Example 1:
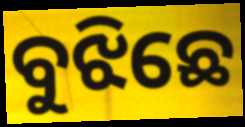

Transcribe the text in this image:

ବୁଝିଛେ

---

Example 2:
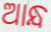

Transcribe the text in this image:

ଆନ୍ଧ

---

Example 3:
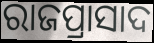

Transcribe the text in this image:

ରାଜପ୍ରାସାଦ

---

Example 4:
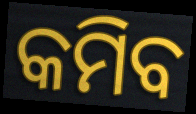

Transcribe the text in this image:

କମିବ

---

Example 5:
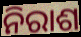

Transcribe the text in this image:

ନିରାଶ